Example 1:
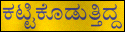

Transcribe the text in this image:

ಕಟ್ಟಿಕೊಡುತ್ತಿದ್ದ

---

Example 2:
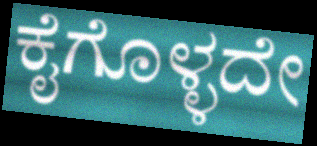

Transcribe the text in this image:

ಕೈಗೊಳ್ಳದೇ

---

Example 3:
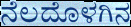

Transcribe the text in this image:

ನೆಲದೊಳಗಿನ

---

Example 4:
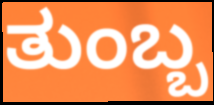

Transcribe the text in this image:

ತುಂಬ್ಬ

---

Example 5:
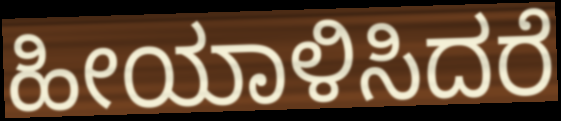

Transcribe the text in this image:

ಹೀಯಾಳಿಸಿದರೆ